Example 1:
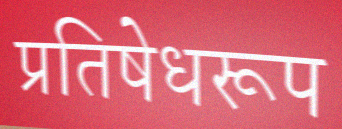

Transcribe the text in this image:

प्रतिषेधरूप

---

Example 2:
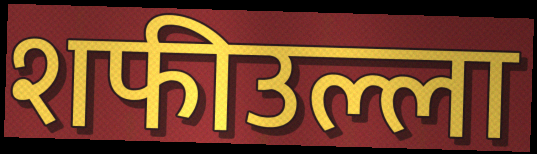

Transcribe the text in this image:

शफीउल्ला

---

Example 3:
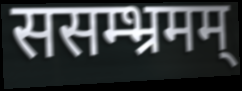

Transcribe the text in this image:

ससम्भ्रमम्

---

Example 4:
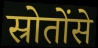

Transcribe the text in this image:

स्रोतोंसे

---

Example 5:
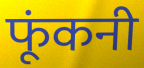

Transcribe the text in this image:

फूंकनी